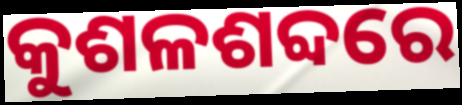
କୁଶଳଶବ୍ଦରେ